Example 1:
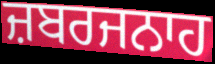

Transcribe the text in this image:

ਜ਼ਬਰਜਨਾਹ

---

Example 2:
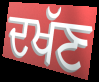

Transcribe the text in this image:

ਦਖੱਣ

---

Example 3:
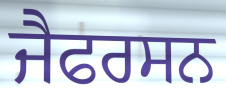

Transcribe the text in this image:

ਜੈਫਰਸਨ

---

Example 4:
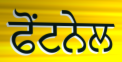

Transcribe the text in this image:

ਫੋਂਟਨੇਲ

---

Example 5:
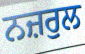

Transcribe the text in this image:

ਨਜ਼ਰੁਲ